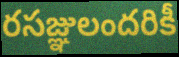
రసజ్ఞులందరికీ